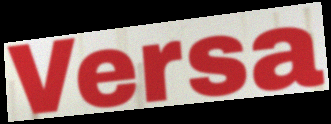
Versa